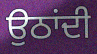
ਉਠਾਂਦੀ